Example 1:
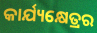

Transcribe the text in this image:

କାର୍ଯ୍ୟକ୍ଷେତ୍ରର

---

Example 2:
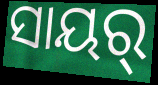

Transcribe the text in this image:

ସାୟର୍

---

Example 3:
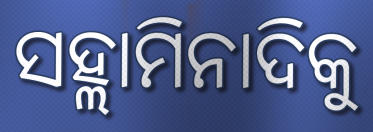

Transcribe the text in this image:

ସହ୍ଲାମିନାଦିକୁ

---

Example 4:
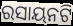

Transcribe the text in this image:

ରସାୟନଟି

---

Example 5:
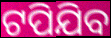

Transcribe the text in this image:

ଟପିଯିବ